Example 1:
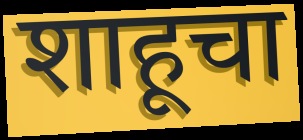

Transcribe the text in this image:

शाहूचा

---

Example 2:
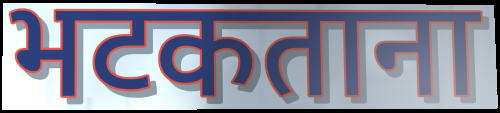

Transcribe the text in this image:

भटकताना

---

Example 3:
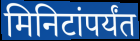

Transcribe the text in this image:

मिनिटांपर्यंत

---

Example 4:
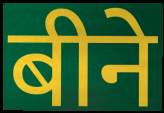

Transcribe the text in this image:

बीने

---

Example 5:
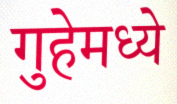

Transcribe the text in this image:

गुहेमध्ये